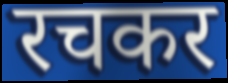
रचकर